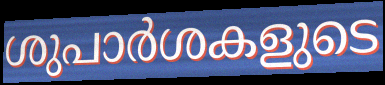
ശുപാർശകളുടെ